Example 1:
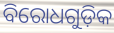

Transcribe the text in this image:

ବିରୋଧଗୁଡ଼ିକ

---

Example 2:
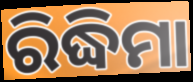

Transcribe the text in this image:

ରିଦ୍ଧିମା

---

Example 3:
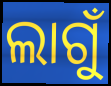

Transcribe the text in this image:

ଲାଗୁଁ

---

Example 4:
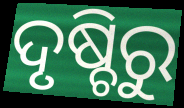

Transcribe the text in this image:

ଦୃଷ୍ଚିରୁ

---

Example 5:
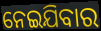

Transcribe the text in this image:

ନେଇଯିବାର